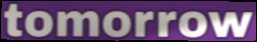
tomorrow